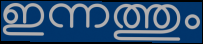
ഇന്നത്തും